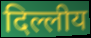
दिल्लीय